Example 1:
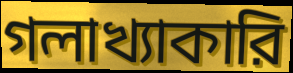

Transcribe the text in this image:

গলাখ্যাকারি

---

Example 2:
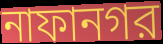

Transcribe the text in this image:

নাফানগর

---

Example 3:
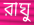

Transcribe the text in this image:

রাঘু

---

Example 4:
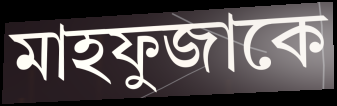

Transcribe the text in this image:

মাহফুজাকে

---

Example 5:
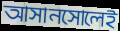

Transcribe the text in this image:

আসানসোলেই